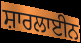
ਸ਼ਾਰਲਾਈਨ